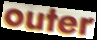
outer